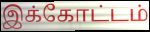
இக்கோட்டம்